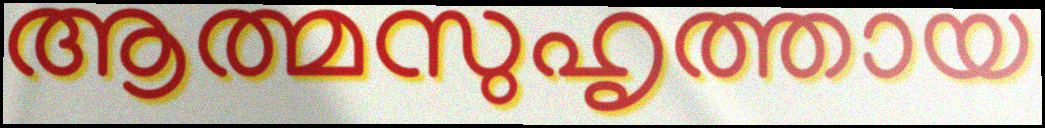
ആത്മസുഹൃത്തായ